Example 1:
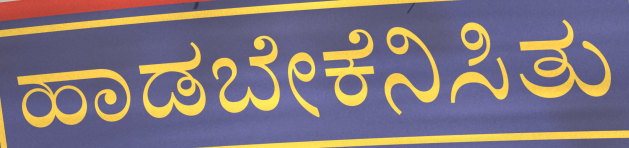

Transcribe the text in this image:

ಹಾಡಬೇಕೆನಿಸಿತು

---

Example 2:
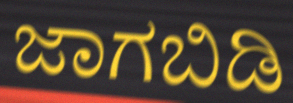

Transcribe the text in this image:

ಜಾಗಬಿಡಿ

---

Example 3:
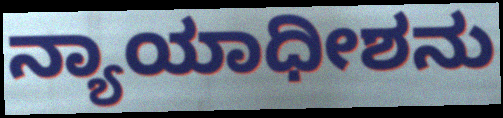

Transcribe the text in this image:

ನ್ಯಾಯಾಧೀಶನು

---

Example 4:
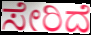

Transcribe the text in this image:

ಸೇರಿದೆ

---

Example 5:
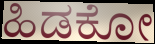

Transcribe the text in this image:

ಹಿಡಕೋ